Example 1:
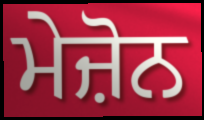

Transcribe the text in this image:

ਮੇਜ਼ੋਨ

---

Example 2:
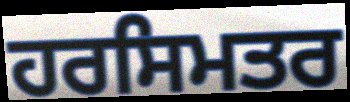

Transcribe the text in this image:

ਹਰਸਿਮਤਰ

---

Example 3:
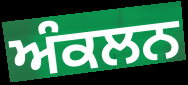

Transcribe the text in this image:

ਅੰਕਲਨ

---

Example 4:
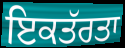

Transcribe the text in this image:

ਇਕਤੱਰਤਾ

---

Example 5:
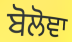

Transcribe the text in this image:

ਬੋਲੋਞਾ